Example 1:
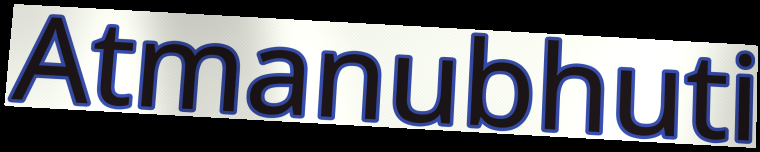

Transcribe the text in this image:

Atmanubhuti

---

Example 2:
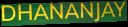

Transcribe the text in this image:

DHANANJAY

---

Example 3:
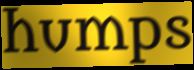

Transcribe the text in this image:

humps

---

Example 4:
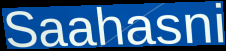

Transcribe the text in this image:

Saahasni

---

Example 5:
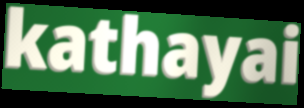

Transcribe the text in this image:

kathayai